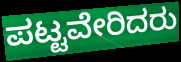
ಪಟ್ಟವೇರಿದರು